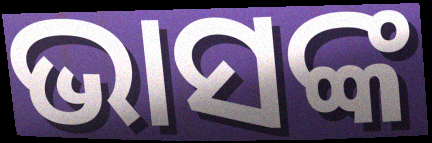
ଭାସଙ୍କ